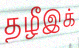
தழீஇக்